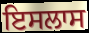
ਇਸਲਾਸ